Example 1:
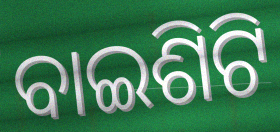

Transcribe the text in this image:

ବାଇଶିଟି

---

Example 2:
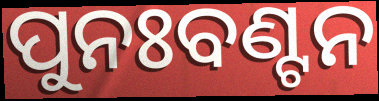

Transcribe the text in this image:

ପୁନଃବଣ୍ଟନ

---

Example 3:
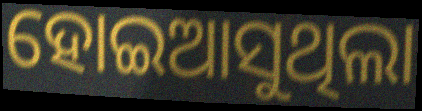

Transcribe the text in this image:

ହୋଇଆସୁଥିଲା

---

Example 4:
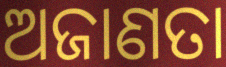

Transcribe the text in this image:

ଅଜାଣତା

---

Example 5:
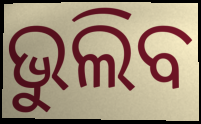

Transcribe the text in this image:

ଭୁଲିବ